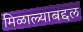
मिळाल्याबद्दल